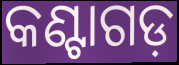
କଣ୍ଟାଗଡ଼